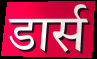
डार्स